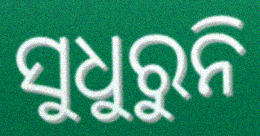
ସୁଧୁରୁନି